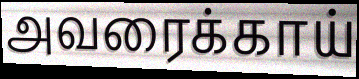
அவரைக்காய்